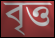
বৃত্ত